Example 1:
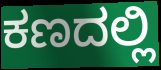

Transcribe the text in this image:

ಕಣದಲ್ಲಿ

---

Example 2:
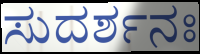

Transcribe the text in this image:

ಸುದರ್ಶನಃ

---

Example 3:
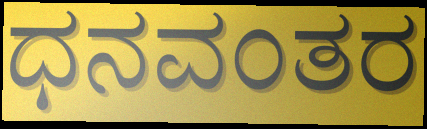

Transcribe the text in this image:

ಧನವಂತರ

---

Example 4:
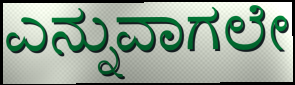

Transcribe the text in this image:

ಎನ್ನುವಾಗಲೇ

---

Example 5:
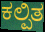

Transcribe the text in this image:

ಕಲ್ಪಿತ